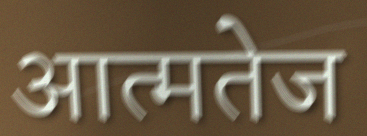
आत्मतेज